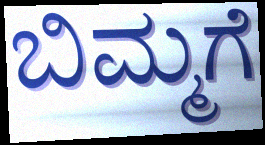
ಬಿಮ್ಮಗೆ